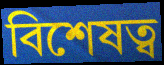
বিশেষত্ব